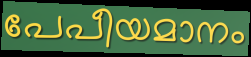
പേപീയമാനം